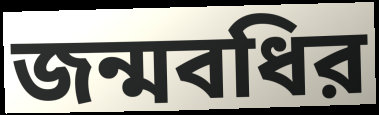
জন্মবধির